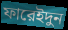
ফারেইদুন